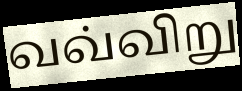
வவ்விறு